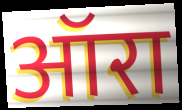
ऑरा